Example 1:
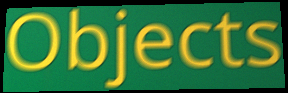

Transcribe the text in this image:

Objects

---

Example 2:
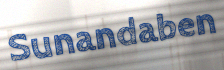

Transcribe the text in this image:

Sunandaben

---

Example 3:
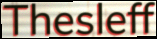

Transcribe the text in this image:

Thesleff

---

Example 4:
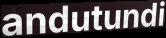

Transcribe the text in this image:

andutundi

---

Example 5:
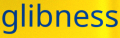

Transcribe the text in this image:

glibness